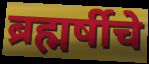
ब्रह्मर्षीचे